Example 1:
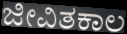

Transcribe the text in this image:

ಜೀವಿತಕಾಲ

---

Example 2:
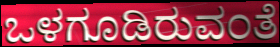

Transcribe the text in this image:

ಒಳಗೂಡಿರುವಂತೆ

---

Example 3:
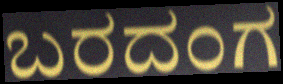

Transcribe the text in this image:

ಬರದಂಗ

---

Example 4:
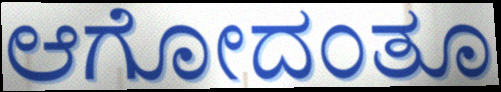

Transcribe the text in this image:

ಆಗೋದಂತೂ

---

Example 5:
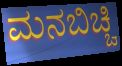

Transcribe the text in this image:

ಮನಬಿಚ್ಚಿ